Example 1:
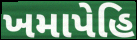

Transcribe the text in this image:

ખમાપેહિ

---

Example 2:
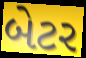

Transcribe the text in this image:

બેટર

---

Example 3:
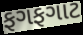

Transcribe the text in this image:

ફગફગાટ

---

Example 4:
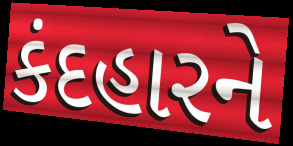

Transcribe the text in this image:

કંદહારને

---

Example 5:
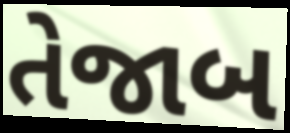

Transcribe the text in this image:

તેજાબ